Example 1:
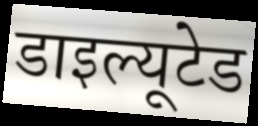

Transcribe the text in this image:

डाइल्यूटेड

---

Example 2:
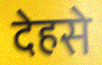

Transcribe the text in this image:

देहसे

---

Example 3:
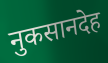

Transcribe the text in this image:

नुकसानदेह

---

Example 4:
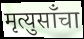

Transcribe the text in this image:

मृत्युसाँचा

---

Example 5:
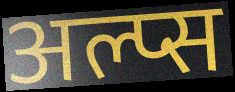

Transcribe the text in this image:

अल्प्स